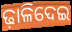
ଢ଼ାଳିଦେଇ